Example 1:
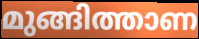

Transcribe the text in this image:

മുങ്ങിത്താണ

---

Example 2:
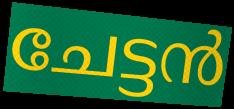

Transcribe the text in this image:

ചേട്ടൻ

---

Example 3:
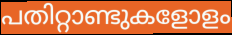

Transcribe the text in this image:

പതിറ്റാണ്ടുകളോളം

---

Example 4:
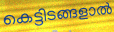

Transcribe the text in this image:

കെട്ടിടങ്ങളാൽ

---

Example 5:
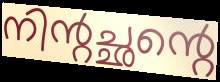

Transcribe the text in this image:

നിന്റച്ഛന്റെ